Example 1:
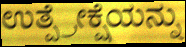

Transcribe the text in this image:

ಉತ್ಪ್ರೇಕ್ಷೆಯನ್ನು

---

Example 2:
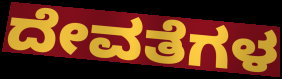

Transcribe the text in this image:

ದೇವತೆಗಳ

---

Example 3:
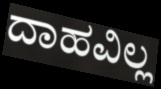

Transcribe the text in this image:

ದಾಹವಿಲ್ಲ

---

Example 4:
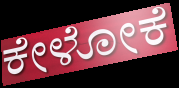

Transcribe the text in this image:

ಕೇಳೋಕೆ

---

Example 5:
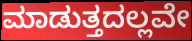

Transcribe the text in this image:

ಮಾಡುತ್ತದಲ್ಲವೇ